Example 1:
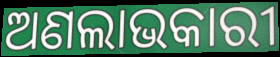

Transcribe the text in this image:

ଅଣଲାଭକାରୀ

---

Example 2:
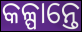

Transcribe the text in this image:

କଳ୍ପାନ୍ତେ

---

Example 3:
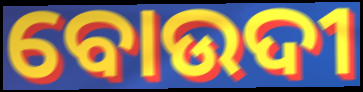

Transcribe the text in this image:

ବୋଉଦୀ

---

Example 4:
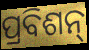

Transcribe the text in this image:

ପ୍ରବିଶନ୍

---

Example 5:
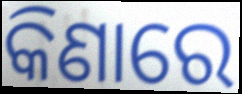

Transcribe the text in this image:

କିଣାରେ